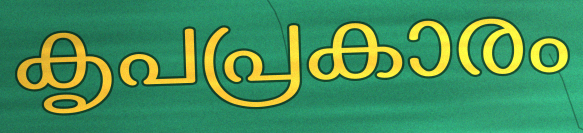
കൃപപ്രകാരം